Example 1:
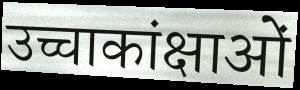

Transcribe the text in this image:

उच्चाकांक्षाओं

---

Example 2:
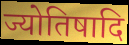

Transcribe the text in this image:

ज्योतिषादि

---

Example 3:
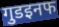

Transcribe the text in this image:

गुडइनफ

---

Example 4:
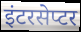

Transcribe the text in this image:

इंटरसेप्टर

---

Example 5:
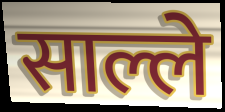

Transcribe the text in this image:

साल्ले